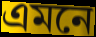
এমনে